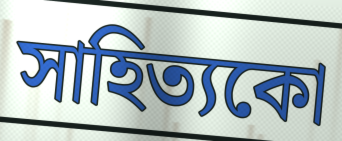
সাহিত্যকো